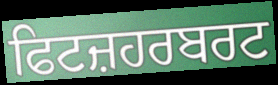
ਫਿਟਜ਼ਹਰਬਰਟ